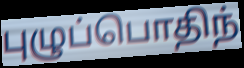
புழுப்பொதிந்